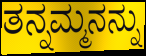
ತನ್ನಮ್ಮನನ್ನು